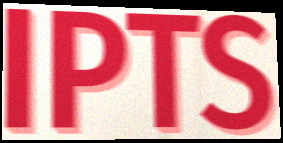
IPTS